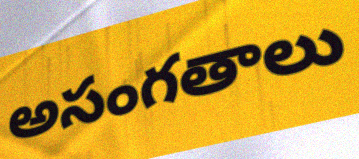
అసంగతాలు